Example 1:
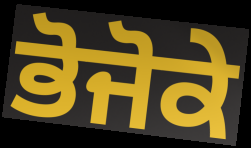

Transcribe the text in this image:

ਭੋਜੋਕੇ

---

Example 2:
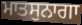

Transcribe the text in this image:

ਮਾਤਸੁਨਾਗਾ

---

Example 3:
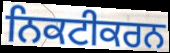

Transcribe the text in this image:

ਨਿਕਟੀਕਰਨ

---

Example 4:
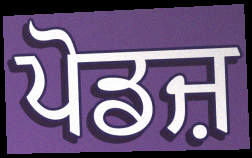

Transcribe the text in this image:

ਪੋਡਜ਼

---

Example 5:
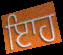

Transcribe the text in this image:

ਇਾਹ